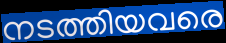
നടത്തിയവരെ